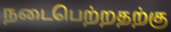
நடைபெற்றதற்கு